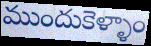
ముందుకెళ్ళాం